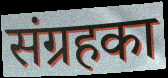
संग्रहका